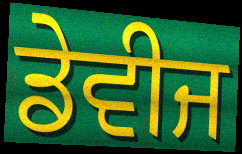
ਡੇਵੀਜ